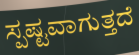
ಸ್ಪಷ್ಟವಾಗುತ್ತದೆ